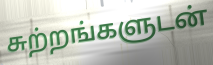
சுற்றங்களுடன்